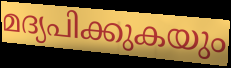
മദ്യപിക്കുകയും